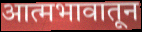
आत्मभावातून